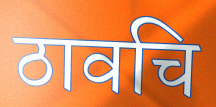
ठावचि